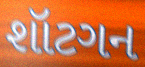
શૉટગન